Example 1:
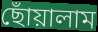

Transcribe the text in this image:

ছোঁয়ালাম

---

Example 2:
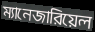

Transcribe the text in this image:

ম্যানেজারিয়েল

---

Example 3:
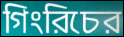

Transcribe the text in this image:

গিংরিচের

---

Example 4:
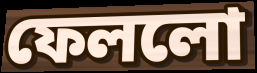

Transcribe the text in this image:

ফেললো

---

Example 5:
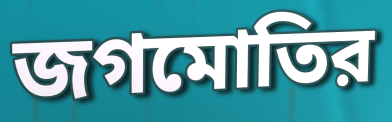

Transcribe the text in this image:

জগমোতির